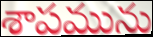
శాపమును